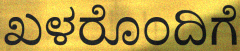
ಖಳರೊಂದಿಗೆ